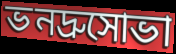
ভনদ্রুসোভা